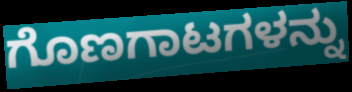
ಗೊಣಗಾಟಗಳನ್ನು